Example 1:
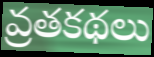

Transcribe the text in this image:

వ్రతకథలు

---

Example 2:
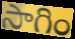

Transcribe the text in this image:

సాగిం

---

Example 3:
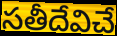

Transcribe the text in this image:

సతీదేవిచే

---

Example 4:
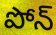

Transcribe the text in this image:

పోన్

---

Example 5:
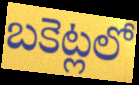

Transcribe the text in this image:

బకెట్లలో